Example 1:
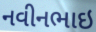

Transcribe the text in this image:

નવીનભાઇ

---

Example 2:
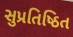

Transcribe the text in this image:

સુપ્રતિષ્ઠિત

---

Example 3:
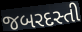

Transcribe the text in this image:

જબરદસ્તી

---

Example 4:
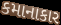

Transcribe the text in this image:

કમાનાકાર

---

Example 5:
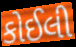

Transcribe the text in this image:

કોઈલી